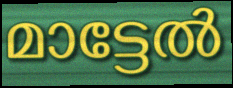
മാട്ടേൽ